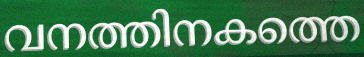
വനത്തിനകത്തെ